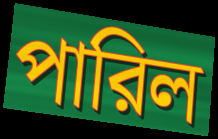
পারিল